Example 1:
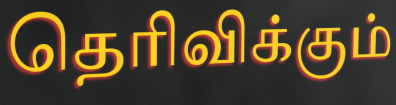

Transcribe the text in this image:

தெரிவிக்கும்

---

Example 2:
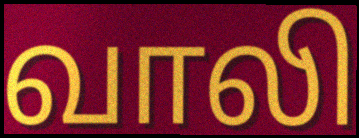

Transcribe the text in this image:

வாலி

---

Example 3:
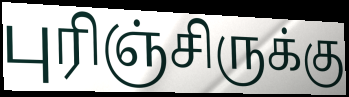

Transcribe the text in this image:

புரிஞ்சிருக்கு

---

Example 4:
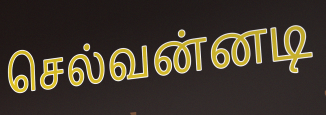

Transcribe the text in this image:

செல்வன்னடி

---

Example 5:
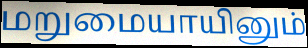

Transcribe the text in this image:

மறுமையாயினும்